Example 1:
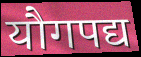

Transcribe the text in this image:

यौगपद्य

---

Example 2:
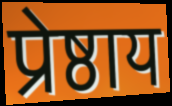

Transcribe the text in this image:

प्रेष्ठाय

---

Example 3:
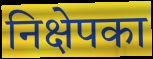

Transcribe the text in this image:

निक्षेपका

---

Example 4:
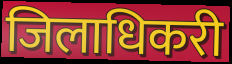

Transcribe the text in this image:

जिलाधिकरी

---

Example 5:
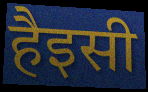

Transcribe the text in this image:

हैइसी